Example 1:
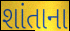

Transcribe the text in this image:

શાંતાના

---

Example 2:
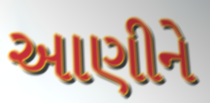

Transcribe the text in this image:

આણીને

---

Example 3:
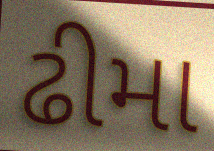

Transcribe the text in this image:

ઢીમા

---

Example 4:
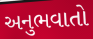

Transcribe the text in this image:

અનુભવાતો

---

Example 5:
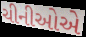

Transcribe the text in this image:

ચીનીઓએ